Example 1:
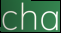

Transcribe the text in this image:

cha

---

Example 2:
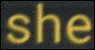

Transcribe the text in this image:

she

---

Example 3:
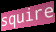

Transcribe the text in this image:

squire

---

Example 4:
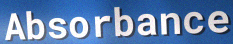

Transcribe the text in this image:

Absorbance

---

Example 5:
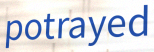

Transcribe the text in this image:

potrayed